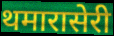
थमारासेरी